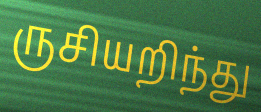
ருசியறிந்து